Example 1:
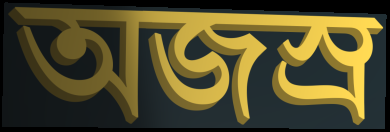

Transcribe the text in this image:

অজস্ৰ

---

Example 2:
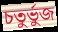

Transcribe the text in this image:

চতুৰ্ভুজ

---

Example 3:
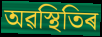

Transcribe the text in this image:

অৱস্থিতিৰ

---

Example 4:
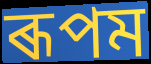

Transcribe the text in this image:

ৰূপম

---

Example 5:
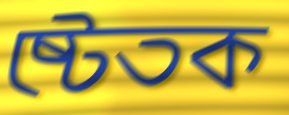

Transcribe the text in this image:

ষ্টেতক